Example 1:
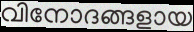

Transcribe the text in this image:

വിനോദങ്ങളായ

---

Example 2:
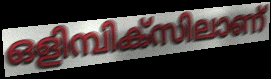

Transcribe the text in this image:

ഒളിമ്പിക്സിലാണ്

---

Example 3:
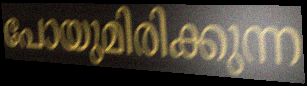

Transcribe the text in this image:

പോയുമിരിക്കുന്ന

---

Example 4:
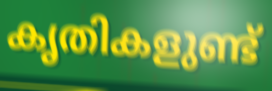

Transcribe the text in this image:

കൃതികളുണ്ട്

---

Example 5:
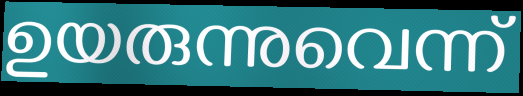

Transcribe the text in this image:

ഉയരുന്നുവെന്ന്